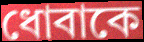
ধোবাকে